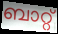
ബാറ്റ്